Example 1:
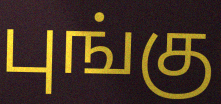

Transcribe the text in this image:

புங்கு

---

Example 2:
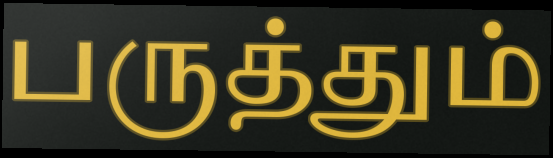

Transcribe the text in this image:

பருத்தும்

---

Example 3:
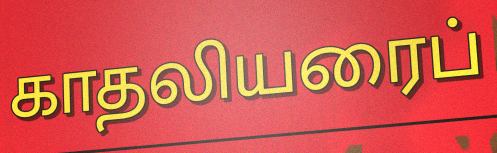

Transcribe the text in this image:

காதலியரைப்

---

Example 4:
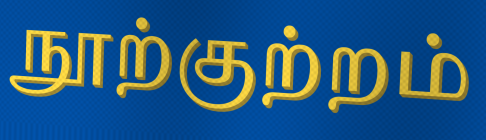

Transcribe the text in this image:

நூற்குற்றம்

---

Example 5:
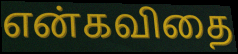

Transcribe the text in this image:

என்கவிதை